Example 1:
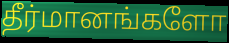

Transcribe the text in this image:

தீர்மானங்களோ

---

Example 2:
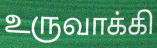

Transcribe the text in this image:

உருவாக்கி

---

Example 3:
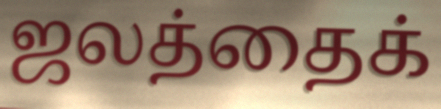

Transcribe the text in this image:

ஜலத்தைக்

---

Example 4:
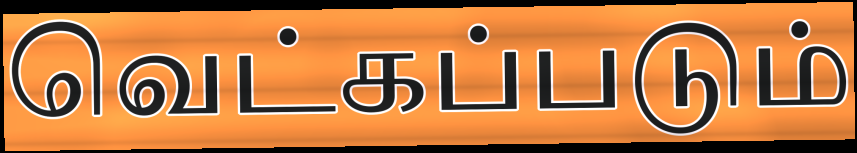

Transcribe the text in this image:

வெட்கப்படும்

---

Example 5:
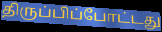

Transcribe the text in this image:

திருப்பிப்போட்டது